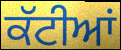
ਕੱਟੀਆਂ